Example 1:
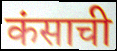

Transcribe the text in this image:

कंसाची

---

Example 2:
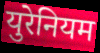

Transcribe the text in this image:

युरेनियम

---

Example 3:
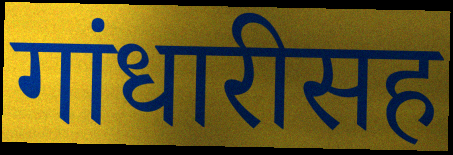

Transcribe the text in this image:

गांधारीसह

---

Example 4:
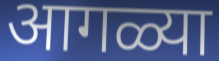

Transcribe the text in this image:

आगळ्या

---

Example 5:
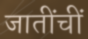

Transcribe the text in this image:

जातींचीं